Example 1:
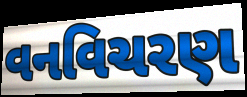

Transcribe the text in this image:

વનવિચરણ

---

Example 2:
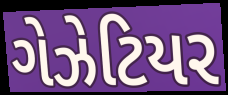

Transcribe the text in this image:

ગેઝેટિયર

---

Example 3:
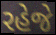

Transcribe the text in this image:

રહેજે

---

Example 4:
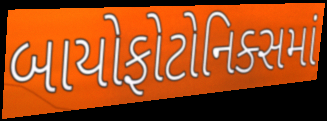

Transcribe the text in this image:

બાયોફોટોનિક્સમાં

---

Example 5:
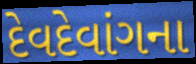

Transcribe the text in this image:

દેવદેવાંગના